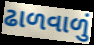
ઢાળવાળું